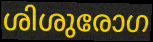
ശിശുരോഗ